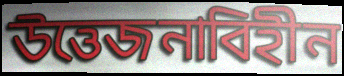
উত্তেজনাবিহীন